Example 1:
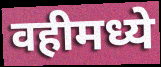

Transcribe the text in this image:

वहीमध्ये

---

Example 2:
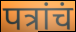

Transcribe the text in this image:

पत्रांचं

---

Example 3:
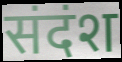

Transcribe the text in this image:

संदंश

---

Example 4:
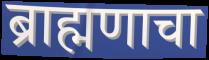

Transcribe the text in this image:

ब्राह्मणाचा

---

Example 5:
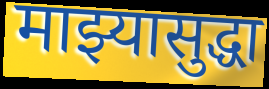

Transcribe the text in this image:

माझ्यासुद्धा